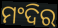
ମଂଦିର